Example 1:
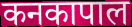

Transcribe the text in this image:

कनकापाल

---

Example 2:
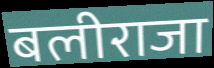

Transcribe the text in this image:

बलीराजा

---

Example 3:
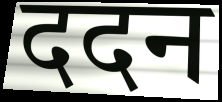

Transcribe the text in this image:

ददन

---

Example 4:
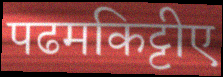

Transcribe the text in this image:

पढमकिट्टीए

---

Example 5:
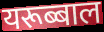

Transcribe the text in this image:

यरूब्बाल